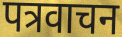
पत्रवाचन